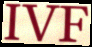
IVF